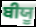
ਬੀਯੂ